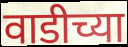
वाडीच्या